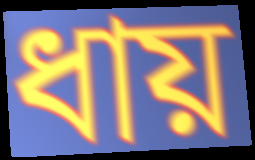
ধায়